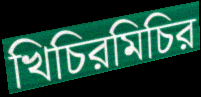
খিচিরমিচির